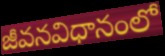
జీవనవిధానంలో